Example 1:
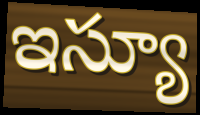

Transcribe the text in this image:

ఇస్యూ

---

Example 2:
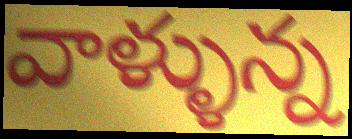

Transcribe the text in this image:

వాళ్ళున్న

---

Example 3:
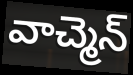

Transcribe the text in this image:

వాచ్మెన్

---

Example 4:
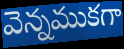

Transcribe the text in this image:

వెన్నముకగా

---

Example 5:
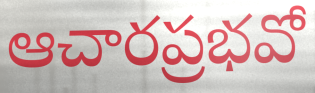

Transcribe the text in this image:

ఆచారప్రభవో